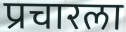
प्रचारला